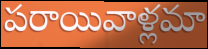
పరాయివాళ్లమా